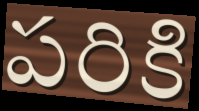
పరికి